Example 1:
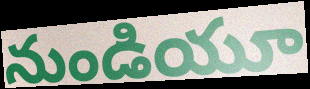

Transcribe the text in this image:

నుండియూ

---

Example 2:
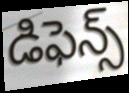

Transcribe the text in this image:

డిఫెన్స్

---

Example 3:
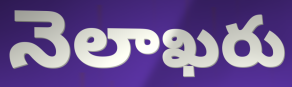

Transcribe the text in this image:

నెలాఖరు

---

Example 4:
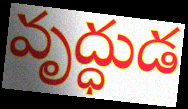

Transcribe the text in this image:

వృద్ధుడ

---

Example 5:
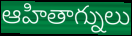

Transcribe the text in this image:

ఆహితాగ్నులు